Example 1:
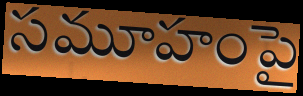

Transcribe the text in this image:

సమూహంపై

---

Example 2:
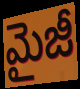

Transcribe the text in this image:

మైజీ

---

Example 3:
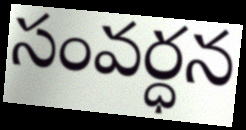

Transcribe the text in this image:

సంవర్ధన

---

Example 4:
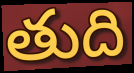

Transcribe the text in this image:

తుది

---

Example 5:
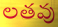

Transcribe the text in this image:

లతవు